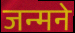
जन्मने